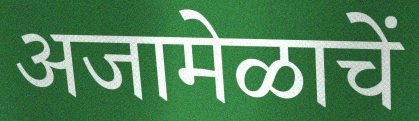
अजामेळाचें